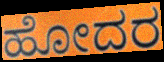
ಹೋದರ